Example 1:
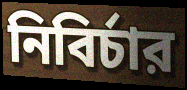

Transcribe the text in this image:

নিবির্চার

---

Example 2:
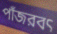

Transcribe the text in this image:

পাঁজরবৎ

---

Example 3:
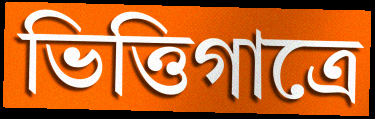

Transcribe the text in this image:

ভিত্তিগাত্রে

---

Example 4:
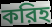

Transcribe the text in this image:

করিহ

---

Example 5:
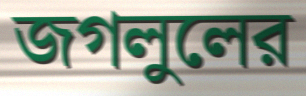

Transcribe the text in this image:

জগলুলের